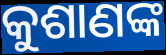
କୁଶାଣଙ୍କ